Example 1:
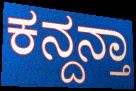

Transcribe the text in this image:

ಕನ್ದನ್ತಾ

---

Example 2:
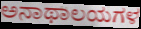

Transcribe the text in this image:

ಅನಾಥಾಲಯಗಳ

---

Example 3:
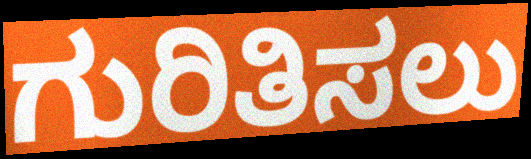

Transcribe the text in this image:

ಗುರಿತಿಸಲು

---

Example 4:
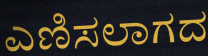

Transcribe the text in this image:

ಎಣಿಸಲಾಗದ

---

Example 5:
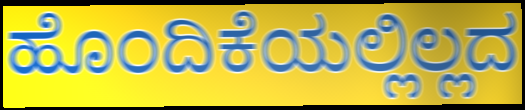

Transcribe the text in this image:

ಹೊಂದಿಕೆಯಲ್ಲಿಲ್ಲದ